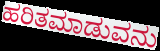
ಹರಿತಮಾಡುವನು